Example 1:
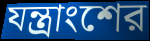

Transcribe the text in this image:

যন্ত্রাংশের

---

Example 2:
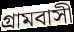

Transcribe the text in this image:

গ্রামবাসী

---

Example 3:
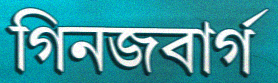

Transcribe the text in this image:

গিনজবার্গ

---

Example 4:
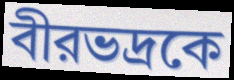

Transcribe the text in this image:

বীরভদ্রকে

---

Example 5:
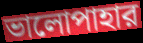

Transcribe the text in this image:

ভালোপাহার